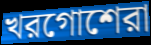
খরগোশেরা